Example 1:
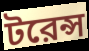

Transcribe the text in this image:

টরেন্স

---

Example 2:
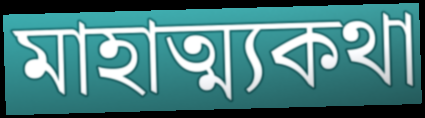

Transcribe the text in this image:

মাহাত্ম্যকথা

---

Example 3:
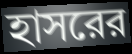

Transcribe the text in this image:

হাসরের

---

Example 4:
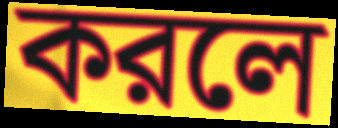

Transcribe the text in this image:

করলে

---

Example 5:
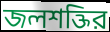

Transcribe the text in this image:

জলশক্তির